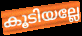
കൂടിയല്ലേ